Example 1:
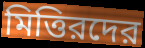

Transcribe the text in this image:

মিত্তিরদের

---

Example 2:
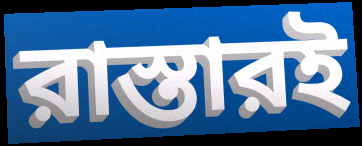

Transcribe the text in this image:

রাস্তারই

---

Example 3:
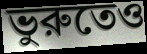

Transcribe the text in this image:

ভুরুতেও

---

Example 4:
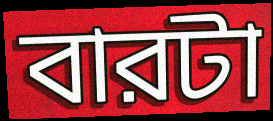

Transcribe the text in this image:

বারটা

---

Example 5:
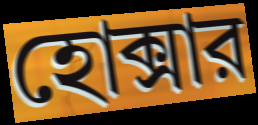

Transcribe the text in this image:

হোক্সার